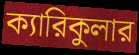
ক্যারিকুলার